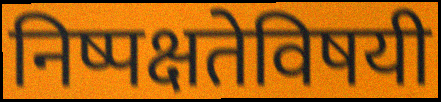
निष्पक्षतेविषयी